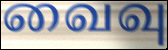
வைவு